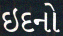
ઇદનો